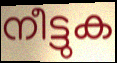
നീട്ടുക